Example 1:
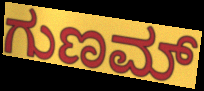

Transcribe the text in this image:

ಗುಣಮ್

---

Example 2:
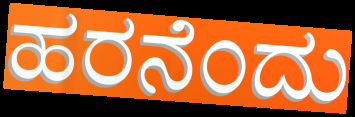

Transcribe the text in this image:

ಹರನೆಂದು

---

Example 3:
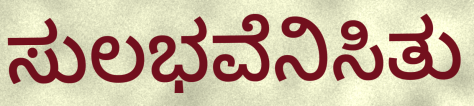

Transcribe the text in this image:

ಸುಲಭವೆನಿಸಿತು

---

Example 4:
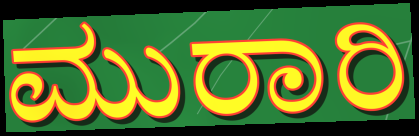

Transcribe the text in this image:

ಮುರಾರಿ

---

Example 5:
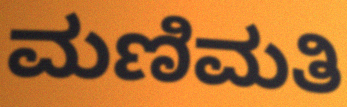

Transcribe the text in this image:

ಮಣಿಮತಿ